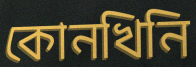
কোনখিনি